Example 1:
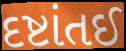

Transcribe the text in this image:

દષ્ટાંતઈ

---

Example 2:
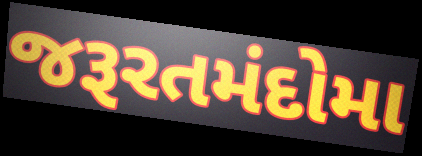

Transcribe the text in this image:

જરૂરતમંદોમા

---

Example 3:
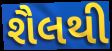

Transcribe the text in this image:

શૈલથી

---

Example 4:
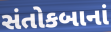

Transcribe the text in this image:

સંતોકબાનાં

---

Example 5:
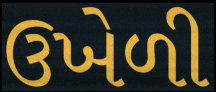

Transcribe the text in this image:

ઉખેળી